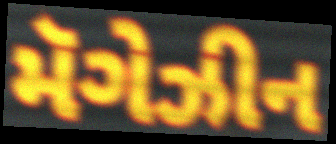
મૅગેઝીન